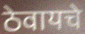
ठेवायचे